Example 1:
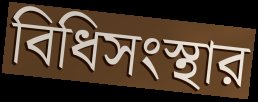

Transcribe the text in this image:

বিধিসংস্থার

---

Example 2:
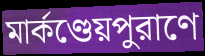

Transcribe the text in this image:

মার্কণ্ডেয়পুরাণে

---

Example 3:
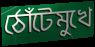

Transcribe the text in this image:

ঠোঁটেমুখে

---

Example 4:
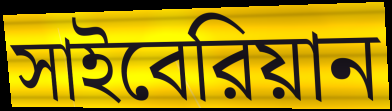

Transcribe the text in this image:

সাইবেরিয়ান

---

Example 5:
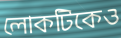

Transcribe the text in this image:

লোকটিকেও